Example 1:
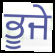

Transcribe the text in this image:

ਭੂਜੇ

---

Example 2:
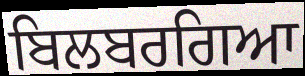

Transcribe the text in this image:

ਬਿਲਬਰਗਿਆ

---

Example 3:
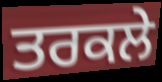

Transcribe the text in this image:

ਤਰਕਲੇ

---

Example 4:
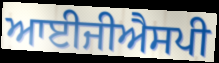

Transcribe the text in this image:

ਆਈਜੀਐਸਪੀ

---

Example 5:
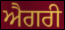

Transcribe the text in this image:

ਐਗਰੀ